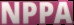
NPPA